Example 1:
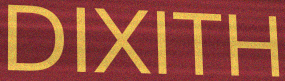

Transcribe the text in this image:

DIXITH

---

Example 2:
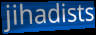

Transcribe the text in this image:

jihadists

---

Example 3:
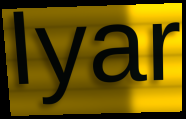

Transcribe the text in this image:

Iyar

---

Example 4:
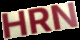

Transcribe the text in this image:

HRN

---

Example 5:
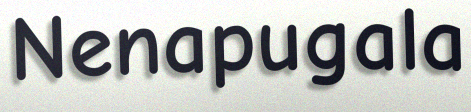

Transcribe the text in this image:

Nenapugala